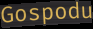
Gospodu